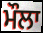
ਮੌਲਾ